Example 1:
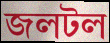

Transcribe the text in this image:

জলটল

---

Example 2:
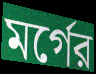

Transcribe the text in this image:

মর্গের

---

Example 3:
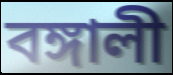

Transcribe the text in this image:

বঙ্গালী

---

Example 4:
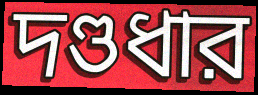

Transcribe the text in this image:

দণ্ডধার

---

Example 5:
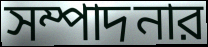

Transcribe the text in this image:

সম্পাদনার